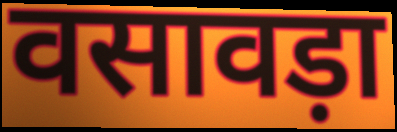
वसावड़ा